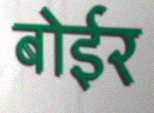
बोईर